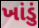
ખાંડું